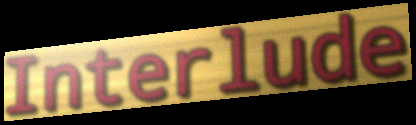
Interlude